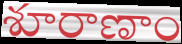
శూరాణాం